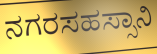
ನಗರಸಹಸ್ಸಾನಿ